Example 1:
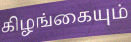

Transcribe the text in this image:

கிழங்கையும்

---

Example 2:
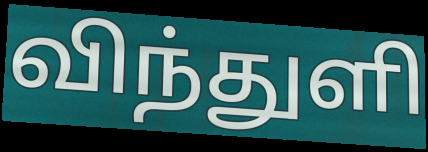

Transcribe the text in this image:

விந்துளி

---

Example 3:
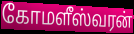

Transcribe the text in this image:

கோமளீஸ்வரன்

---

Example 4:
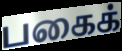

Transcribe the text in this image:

பகைக்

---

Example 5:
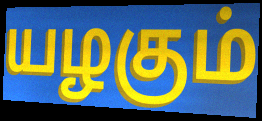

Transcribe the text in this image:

யழகும்